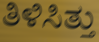
ತಿಳಿಸಿತ್ತು